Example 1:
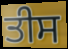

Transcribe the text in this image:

ਤੀਸ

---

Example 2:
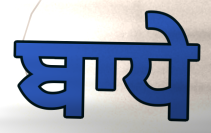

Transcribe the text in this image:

ਬਾਧੇ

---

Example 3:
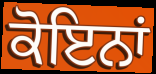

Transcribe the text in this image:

ਕੋਇਨਾਂ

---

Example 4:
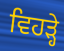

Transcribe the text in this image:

ਵਿਹੜ੍ਹੇ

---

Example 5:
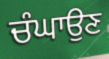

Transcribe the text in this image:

ਚੰਘਾਉਣ